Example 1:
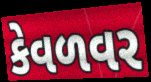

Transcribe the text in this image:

કેવળવર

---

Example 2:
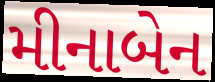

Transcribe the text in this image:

મીનાબેન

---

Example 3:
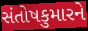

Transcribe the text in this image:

સંતોષકુમારને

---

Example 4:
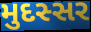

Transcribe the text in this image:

મુદસ્સર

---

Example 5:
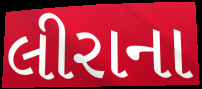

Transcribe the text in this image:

લીરાના